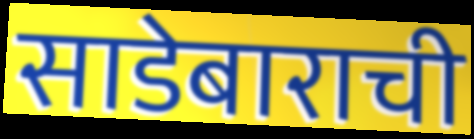
साडेबाराची